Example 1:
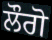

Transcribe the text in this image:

ਲੌਗੋ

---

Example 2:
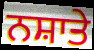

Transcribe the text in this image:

ਨਸ਼ਾਤੇ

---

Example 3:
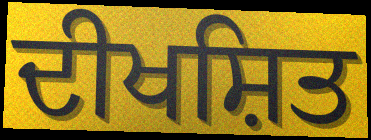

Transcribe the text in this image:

ਦੀਖਸ਼ਿਤ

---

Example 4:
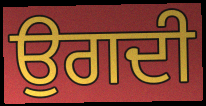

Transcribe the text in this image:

ਉਗਦੀ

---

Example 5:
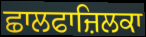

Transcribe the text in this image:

ਛਾਲਫਾਜ਼ਿਲਕਾ